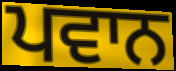
ਪਵਾਨ